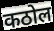
कठोल